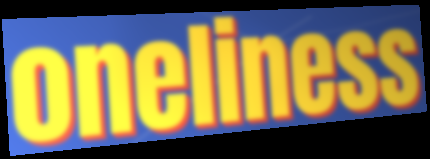
oneliness